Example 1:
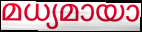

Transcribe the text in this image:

മധ്യമായാ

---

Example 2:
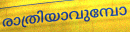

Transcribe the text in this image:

രാത്രിയാവുമ്പോ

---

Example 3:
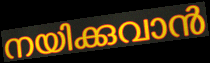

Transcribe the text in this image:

നയിക്കുവാൻ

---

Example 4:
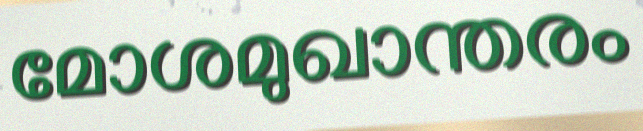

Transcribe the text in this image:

മോശമുഖാന്തരം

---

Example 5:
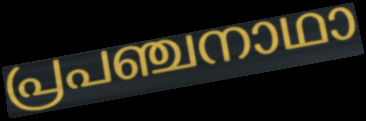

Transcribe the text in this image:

പ്രപഞ്ചനാഥാ